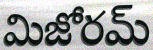
మిజోరమ్